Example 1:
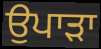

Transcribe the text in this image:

ਉਪਾੜਾ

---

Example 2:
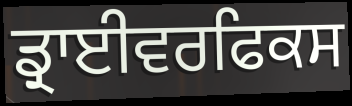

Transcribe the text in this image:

ਡ੍ਰਾਈਵਰਫਿਕਸ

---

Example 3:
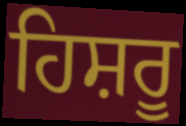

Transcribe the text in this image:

ਹਿਸ਼ਰੂ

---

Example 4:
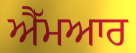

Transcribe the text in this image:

ਐੱਮਆਰ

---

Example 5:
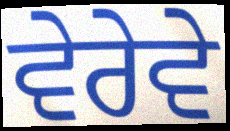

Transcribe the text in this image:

ਵੇਰੇਵੇ